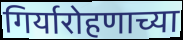
गिर्यारोहणाच्या